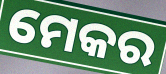
ମେକର